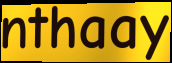
nthaay